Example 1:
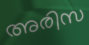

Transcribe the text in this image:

അരിസ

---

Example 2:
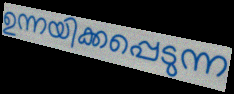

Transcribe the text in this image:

ഉന്നയിക്കപ്പെടുന്ന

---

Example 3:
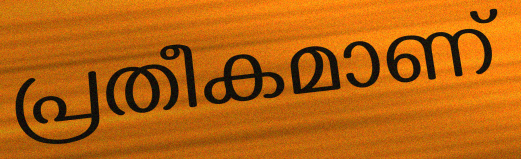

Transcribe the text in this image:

പ്രതീകമാണ്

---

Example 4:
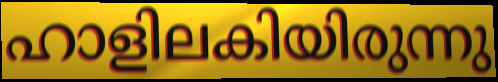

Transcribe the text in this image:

ഹാളിലകിയിരുന്നു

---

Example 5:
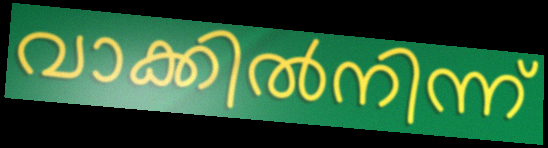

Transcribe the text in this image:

വാക്കിൽനിന്ന്